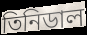
তিনিডাল